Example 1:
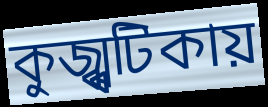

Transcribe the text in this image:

কুজ্ঝ্বটিকায়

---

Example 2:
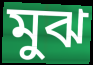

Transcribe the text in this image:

মুঝ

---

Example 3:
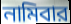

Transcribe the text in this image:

নামিবার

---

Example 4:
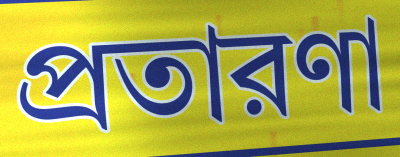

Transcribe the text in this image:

প্রতারণা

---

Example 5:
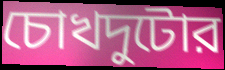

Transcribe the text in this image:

চোখদুটোর